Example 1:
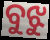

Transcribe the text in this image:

ବୁଝୁ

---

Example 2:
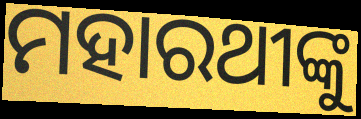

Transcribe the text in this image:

ମହାରଥୀଙ୍କୁ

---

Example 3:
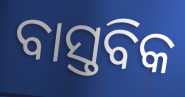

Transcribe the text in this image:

ବାସ୍ତବିକ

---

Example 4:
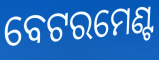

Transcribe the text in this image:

ବେଟରମେଣ୍ଟ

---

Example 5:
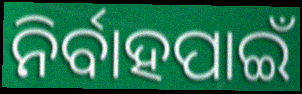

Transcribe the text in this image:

ନିର୍ବାହପାଇଁ